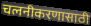
चलनीकरणासाठी